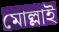
মোল্লাই